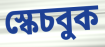
স্কেচবুক